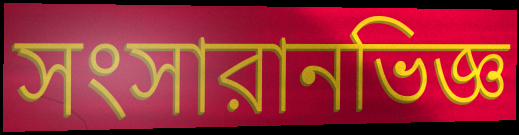
সংসারানভিজ্ঞ